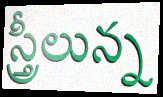
స్త్రీలున్న